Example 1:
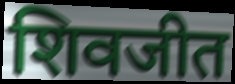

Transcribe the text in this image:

शिवजीत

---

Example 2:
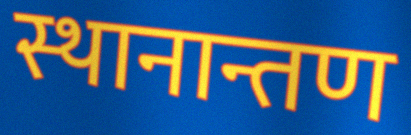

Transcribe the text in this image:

स्थानान्तण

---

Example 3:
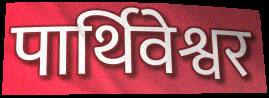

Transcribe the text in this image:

पार्थिवेश्वर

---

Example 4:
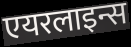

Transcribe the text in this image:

एयरलाइन्स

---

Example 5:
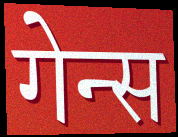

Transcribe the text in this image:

गेन्स